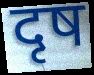
दृष